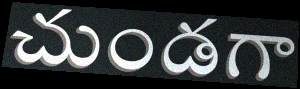
చుండగా